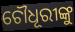
ଚୌଧୂରୀଙ୍କୁ